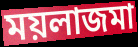
ময়লাজমা